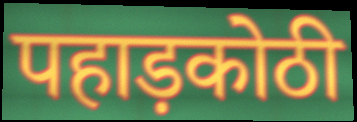
पहाड़कोठी